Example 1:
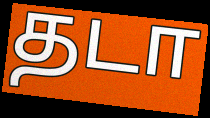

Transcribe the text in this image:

தடா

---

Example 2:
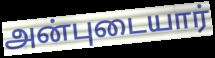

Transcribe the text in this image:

அன்புடையார்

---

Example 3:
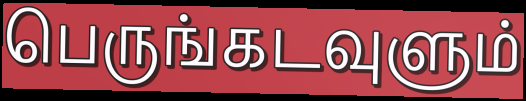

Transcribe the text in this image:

பெருங்கடவுளும்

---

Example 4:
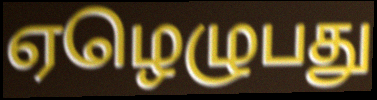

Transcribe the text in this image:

ஏழெழுபது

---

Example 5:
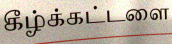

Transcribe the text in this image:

கீழ்க்கட்டளை